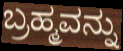
ಬ್ರಹ್ಮವನ್ನು